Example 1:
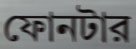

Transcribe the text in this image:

ফোনটার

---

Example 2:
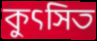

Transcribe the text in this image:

কুৎসিত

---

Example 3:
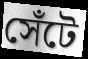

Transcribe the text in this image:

সেঁটে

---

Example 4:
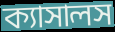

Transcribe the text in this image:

ক্যাসালস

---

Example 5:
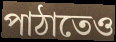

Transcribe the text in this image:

পাঠাতেও